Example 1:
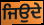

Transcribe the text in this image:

ਜਿਉਦੇ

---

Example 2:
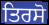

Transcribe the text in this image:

ਤਿਰਸੋ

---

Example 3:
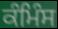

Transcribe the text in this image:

ਕੰਮਿੰਸ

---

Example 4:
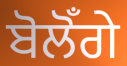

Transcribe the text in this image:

ਬੋਲੋਁਗੇ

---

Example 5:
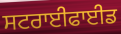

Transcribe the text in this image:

ਸਟਰਾਈਫਾਈਡ